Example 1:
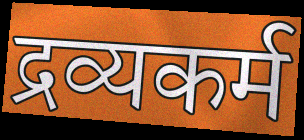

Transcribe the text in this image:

द्रव्यकर्म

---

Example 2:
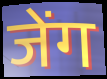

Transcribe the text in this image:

जेंग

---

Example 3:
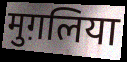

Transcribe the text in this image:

मुग़लिया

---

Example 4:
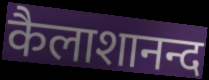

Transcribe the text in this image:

कैलाशानन्द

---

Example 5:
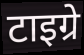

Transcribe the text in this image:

टाइग्रे